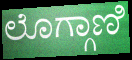
ಲೊಗ್ಗಾಣಿ